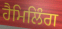
ਹੈਮਿਲਿੰਗ